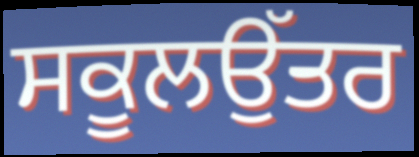
ਸਕੂਲਉੱਤਰ